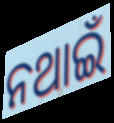
ନଥାଇଁ